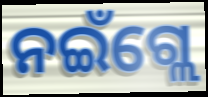
ନଇଁଗ୍ଲେ